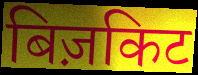
बिज़किट